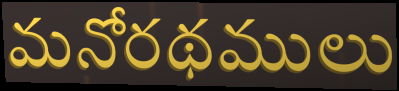
మనోరథములు